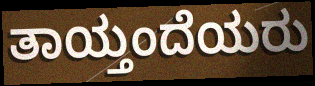
ತಾಯ್ತಂದೆಯರು